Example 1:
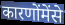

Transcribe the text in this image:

कारणोंमेंसे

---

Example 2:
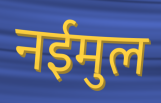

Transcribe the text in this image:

नईमुल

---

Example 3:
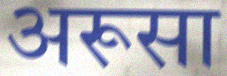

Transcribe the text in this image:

अरूसा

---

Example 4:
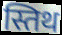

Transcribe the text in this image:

स्तिथ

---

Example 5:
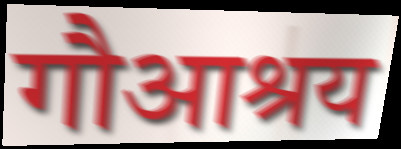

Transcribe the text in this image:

गौआश्रय